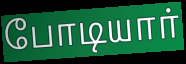
போடியார்